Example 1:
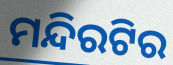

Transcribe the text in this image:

ମନ୍ଦିରଟିର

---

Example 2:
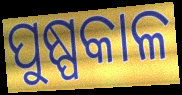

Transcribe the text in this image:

ପୁଷ୍ପକାଳ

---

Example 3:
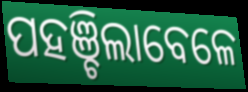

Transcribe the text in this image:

ପହଞ୍ଚିଲାବେଳେ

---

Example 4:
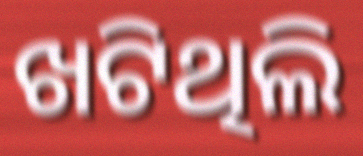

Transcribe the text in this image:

ଖଟିଥିଲି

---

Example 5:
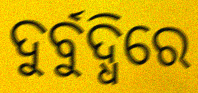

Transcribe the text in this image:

ଦୁର୍ବୁଦ୍ଧିରେ